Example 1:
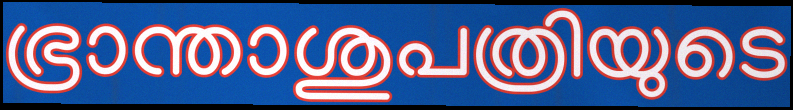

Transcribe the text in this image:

ഭ്രാന്താശുപത്രിയുടെ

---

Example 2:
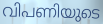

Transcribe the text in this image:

വിപണിയുടെ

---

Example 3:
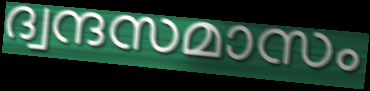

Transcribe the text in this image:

ദ്വന്ദസമാസം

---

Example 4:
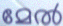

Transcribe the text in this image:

മേൽ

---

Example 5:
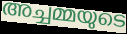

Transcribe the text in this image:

അച്ചമ്മയുടെ